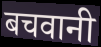
बचवानी